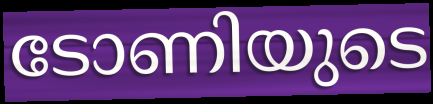
ടോണിയുടെ